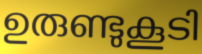
ഉരുണ്ടുകൂടി